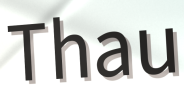
Thau